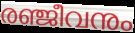
രഞ്ജീവനും